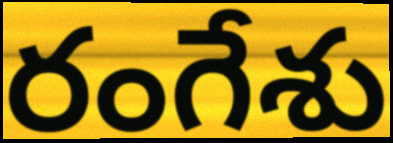
రంగేశు